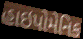
હાઇપોમેનિક